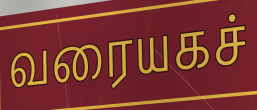
வரையகச்